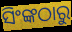
ସିଂଙ୍କଠାରୁ